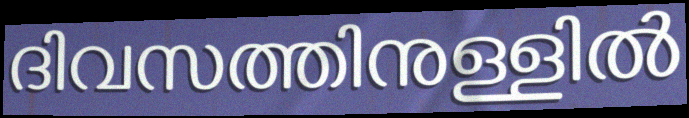
ദിവസത്തിനുള്ളിൽ